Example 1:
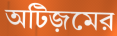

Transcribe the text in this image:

অটিজ়মের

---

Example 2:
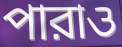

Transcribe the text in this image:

পারাও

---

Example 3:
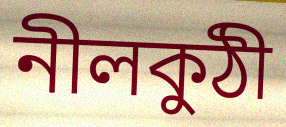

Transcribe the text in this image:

নীলকুঠী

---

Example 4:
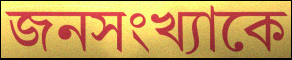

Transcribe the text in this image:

জনসংখ্যাকে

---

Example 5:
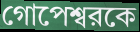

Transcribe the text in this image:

গোপেশ্বরকে